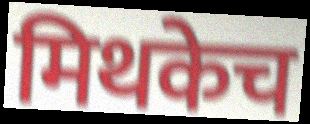
मिथकेच